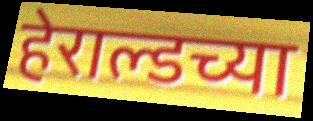
हेराल्डच्या